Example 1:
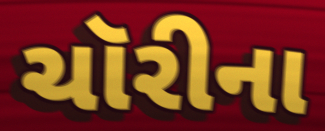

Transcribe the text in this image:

ચૉરીના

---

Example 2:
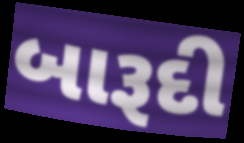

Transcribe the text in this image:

બારૂદી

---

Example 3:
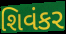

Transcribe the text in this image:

શિવંકર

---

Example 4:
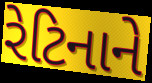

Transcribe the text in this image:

રેટિનાને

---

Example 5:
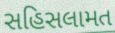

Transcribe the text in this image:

સહિસલામત